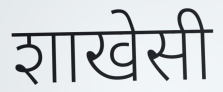
शाखेसी